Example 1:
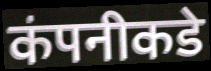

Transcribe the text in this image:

कंपनीकडे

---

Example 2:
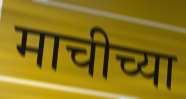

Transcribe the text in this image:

माचीच्या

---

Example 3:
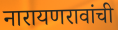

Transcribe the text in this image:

नारायणरावांची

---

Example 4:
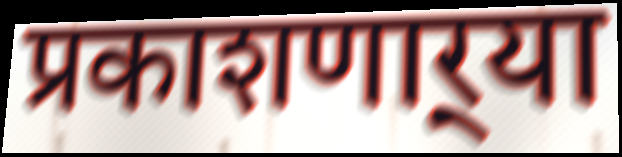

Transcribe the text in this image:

प्रकाशणार्या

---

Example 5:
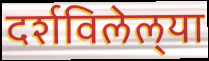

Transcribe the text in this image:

दर्शविलेल्या